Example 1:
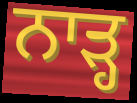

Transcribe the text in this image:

ਨਾੜ੍ਹ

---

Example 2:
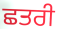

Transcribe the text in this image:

ਛਤਰੀ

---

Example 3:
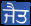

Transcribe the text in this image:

ਜੈਤ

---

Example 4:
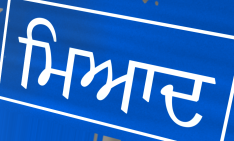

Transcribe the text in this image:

ਮਿਆਦ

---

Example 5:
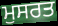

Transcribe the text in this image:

ਮੁਸਰਤ